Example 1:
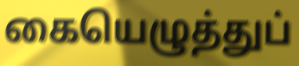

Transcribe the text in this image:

கையெழுத்துப்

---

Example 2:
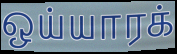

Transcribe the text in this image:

ஒய்யாரக்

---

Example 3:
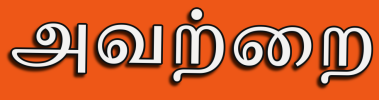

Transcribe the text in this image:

அவற்றை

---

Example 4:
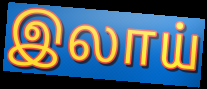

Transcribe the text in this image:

இலாய்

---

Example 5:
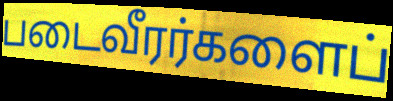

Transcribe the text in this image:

படைவீரர்களைப்